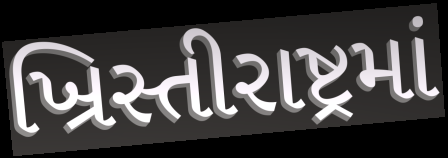
ખ્રિસ્તીરાષ્ટ્રમાં